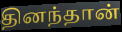
தினந்தான்